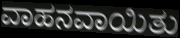
ವಾಹನವಾಯಿತು